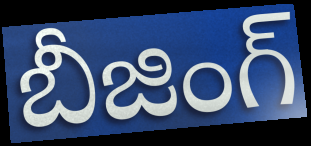
బీజింగ్